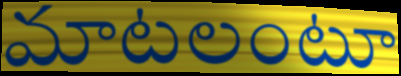
మాటలంటూ